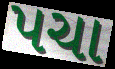
પચા